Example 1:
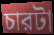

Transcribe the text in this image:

চারটা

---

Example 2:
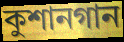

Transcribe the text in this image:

কুশানগান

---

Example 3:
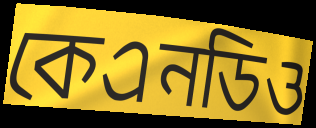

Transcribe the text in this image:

কেএনডিও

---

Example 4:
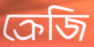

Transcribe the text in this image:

ক্রেজি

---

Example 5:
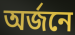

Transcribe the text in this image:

অর্জনে